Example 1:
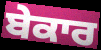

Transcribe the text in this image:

ਬੇਕਾਰ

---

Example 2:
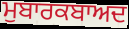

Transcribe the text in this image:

ਮੁਬਾਰਕਬਾਅਦ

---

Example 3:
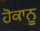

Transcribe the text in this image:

ਹੋਕਾਨੂ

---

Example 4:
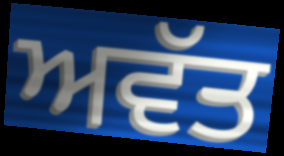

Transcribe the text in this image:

ਅਵੱਤ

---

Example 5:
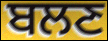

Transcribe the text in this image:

ਬਲਣ